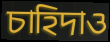
চাহিদাও